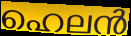
ഹെലൻ